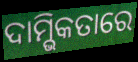
ଦାମ୍ଭିକତାରେ